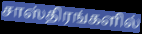
சாஸ்திரங்களில்